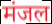
मंजल